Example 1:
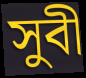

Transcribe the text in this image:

সুবী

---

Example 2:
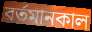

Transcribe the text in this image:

বর্তমানকাল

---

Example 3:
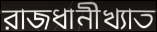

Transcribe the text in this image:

রাজধানীখ্যাত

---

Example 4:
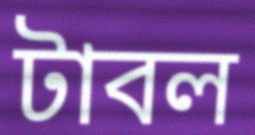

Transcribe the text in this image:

টাবল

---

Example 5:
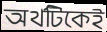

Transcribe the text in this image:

অর্থটিকেই